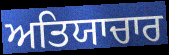
ਅਤਿਯਾਚਾਰ